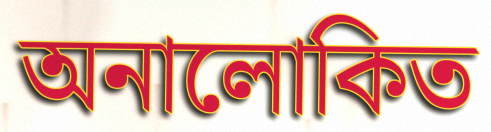
অনালোকিত